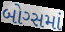
બોગ્સમાં